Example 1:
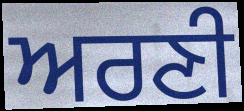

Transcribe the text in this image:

ਅਰਣੀ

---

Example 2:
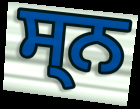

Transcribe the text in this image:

ਸ੍ਨ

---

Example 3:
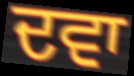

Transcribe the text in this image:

ਦਵਾ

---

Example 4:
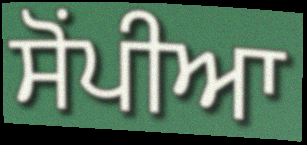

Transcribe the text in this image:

ਸੋਂਪੀਆ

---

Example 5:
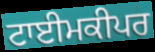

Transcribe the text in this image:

ਟਾਈਮਕੀਪਰ